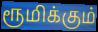
ரூமிக்கும்